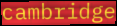
cambridge